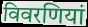
विवरणियां